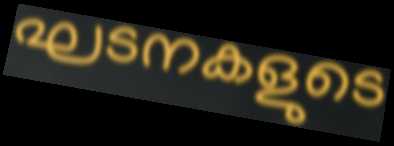
ഘടനകളുടെ